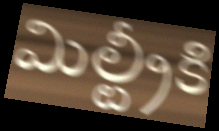
మిల్ట్రీకి